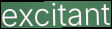
excitant